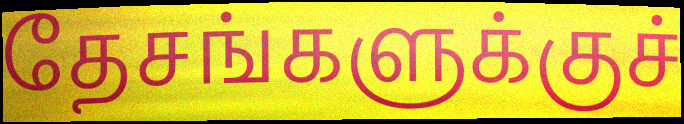
தேசங்களுக்குச்